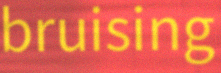
bruising